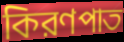
কিরণপাত